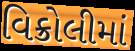
વિક્રોલીમાં